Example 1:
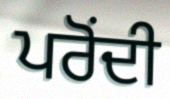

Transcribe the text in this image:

ਪਰੋਂਦੀ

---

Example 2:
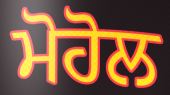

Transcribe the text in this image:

ਮੋਹੋਲ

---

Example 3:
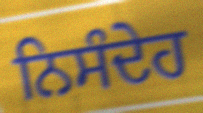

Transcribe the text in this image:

ਨਿਸੰਦੇਹ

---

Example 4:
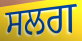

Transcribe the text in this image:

ਸਲਗ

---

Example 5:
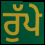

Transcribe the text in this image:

ਰੁੱਪੇ